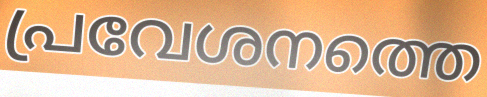
പ്രവേശനത്തെ